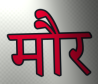
मौर